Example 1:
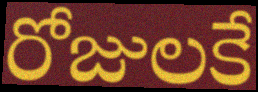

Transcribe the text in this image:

రోజులకే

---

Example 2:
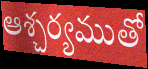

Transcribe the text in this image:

ఆశ్చర్యముతో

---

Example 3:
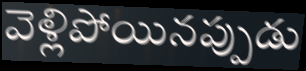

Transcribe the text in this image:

వెళ్లిపోయినప్పుడు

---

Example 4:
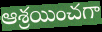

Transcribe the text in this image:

ఆశ్రయించగా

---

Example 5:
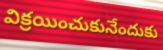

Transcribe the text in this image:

విక్రయించుకునేందుకు